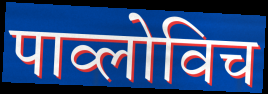
पाव्लोविच